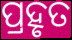
ପ୍ରହୃତ